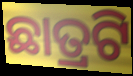
ଛାତ୍ରଟି